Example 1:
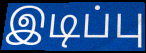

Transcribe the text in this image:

இடிப்பு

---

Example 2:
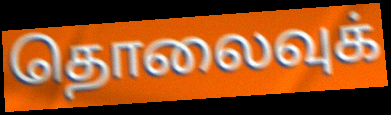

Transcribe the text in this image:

தொலைவுக்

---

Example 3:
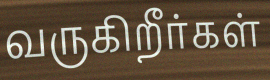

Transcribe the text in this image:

வருகிறீர்கள்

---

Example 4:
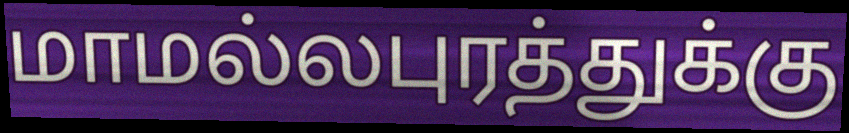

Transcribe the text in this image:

மாமல்லபுரத்துக்கு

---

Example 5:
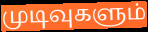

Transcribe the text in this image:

முடிவுகளும்